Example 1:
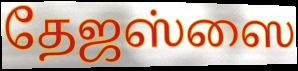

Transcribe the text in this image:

தேஜஸ்ஸை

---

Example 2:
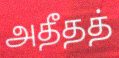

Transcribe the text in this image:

அதீதத்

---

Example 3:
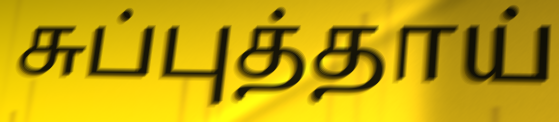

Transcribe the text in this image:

சுப்புத்தாய்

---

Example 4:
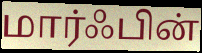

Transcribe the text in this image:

மார்ஃபின்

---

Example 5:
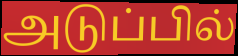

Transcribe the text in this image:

அடுப்பில்